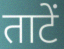
ताटें